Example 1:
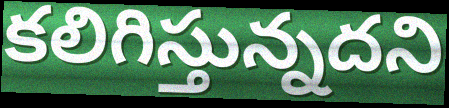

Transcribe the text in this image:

కలిగిస్తున్నదని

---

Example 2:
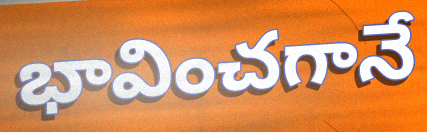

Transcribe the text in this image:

భావించగానే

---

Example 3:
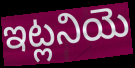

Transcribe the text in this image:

ఇట్లనియె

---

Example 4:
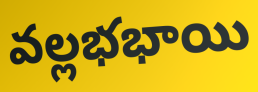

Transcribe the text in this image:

వల్లభభాయి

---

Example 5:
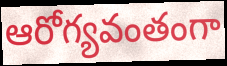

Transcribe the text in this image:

ఆరోగ్యవంతంగా